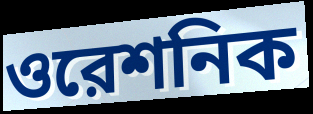
ওরেশনিক